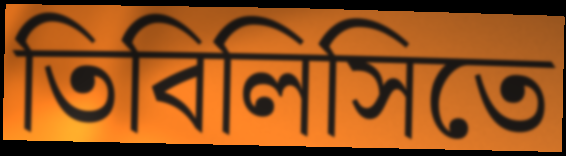
তিবিলিসিতে